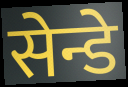
सेन्डे